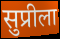
सुप्रीला